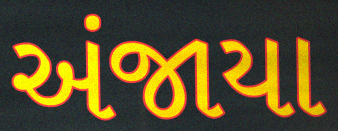
અંજાયા